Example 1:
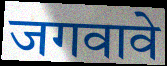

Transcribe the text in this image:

जगवावे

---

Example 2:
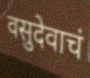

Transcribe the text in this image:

वसुदेवाचं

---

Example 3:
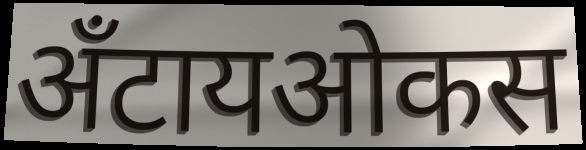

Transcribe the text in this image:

अँटायओकस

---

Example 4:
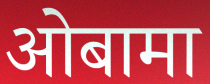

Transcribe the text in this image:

ओबामा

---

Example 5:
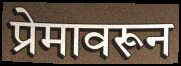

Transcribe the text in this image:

प्रेमावरून